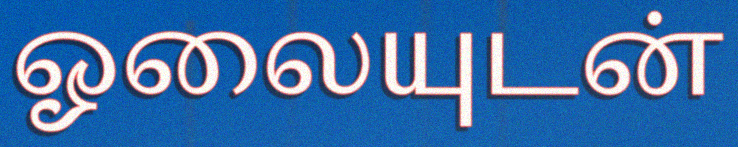
ஓலையுடன்